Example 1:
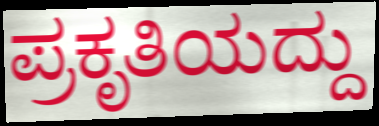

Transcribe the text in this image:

ಪ್ರಕೃತಿಯದ್ದು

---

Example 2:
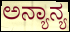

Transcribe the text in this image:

ಅನ್ಯಾನ್ಯ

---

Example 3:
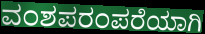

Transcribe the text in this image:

ವಂಶಪರಂಪರೆಯಾಗಿ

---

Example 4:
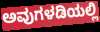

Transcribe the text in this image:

ಅವುಗಳಡಿಯಲ್ಲಿ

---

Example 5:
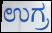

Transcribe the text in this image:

ಉಗ್ರ